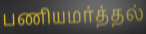
பணியமர்த்தல்